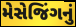
મેસેજિંગનું